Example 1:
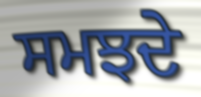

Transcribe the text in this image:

ਸਮਝਦੇ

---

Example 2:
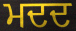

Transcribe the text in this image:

ਮਦਦ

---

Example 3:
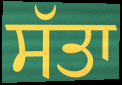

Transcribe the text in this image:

ਸੱਤਾ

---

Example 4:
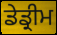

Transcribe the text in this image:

ਡੇਡ੍ਰੀਮ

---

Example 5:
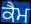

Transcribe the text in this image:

ਕੈਮ